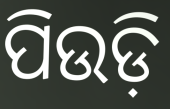
ପିଉଡ଼ି